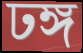
ঢঙ্গ